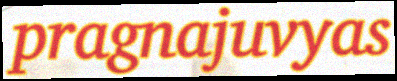
pragnajuvyas